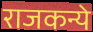
राजकन्ये